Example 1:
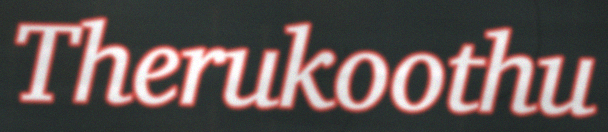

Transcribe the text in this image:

Therukoothu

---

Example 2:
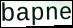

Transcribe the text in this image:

bapne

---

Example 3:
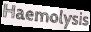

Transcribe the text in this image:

Haemolysis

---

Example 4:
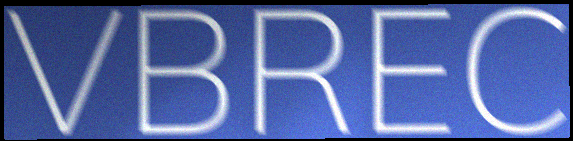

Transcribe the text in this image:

VBREC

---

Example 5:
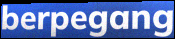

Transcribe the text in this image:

berpegang